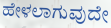
ಹೇಳಲಾಗುವುದೇ